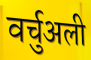
वर्चुअली